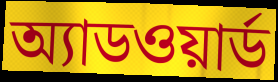
অ্যাডওয়ার্ড